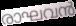
രാഘവൻ